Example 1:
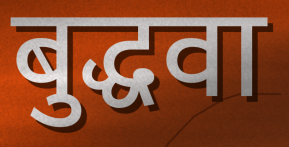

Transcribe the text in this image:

बुद्धवा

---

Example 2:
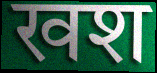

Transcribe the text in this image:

खश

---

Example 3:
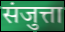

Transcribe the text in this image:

संजुत्ता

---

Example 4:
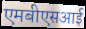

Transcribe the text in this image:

एमबीएसआई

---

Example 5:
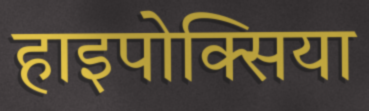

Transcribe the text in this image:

हाइपोक्सिया